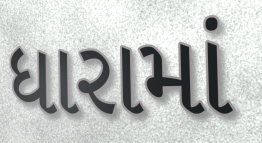
ધારામાં